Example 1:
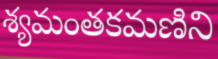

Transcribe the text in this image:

శ్యమంతకమణిని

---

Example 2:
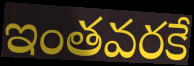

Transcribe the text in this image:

ఇంతవరకే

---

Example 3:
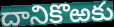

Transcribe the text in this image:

దానికొఱకు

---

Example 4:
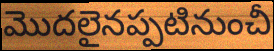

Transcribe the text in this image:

మొదలైనప్పటినుంచీ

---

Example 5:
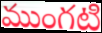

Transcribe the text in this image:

ముంగటి